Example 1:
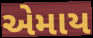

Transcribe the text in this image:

એમાય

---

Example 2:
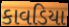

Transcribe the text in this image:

કાવડિયા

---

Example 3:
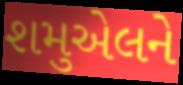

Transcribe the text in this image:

શમુએલને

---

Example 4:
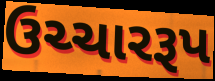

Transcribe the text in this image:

ઉચ્ચારરૂપ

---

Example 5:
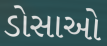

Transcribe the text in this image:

ડોસાઓ